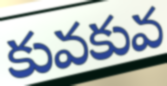
కువకువ